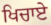
ਖਿਚਾਏ